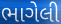
ભાગેલી